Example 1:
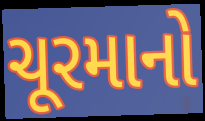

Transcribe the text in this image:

ચૂરમાનો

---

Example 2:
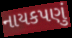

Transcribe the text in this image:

નાયકપણું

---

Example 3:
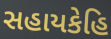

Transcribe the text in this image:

સહાયકેહિ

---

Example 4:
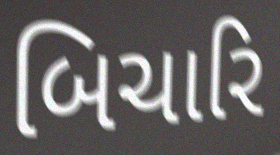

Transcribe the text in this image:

બિચારિ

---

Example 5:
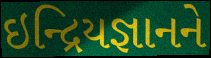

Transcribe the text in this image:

ઇન્દ્રિયજ્ઞાનને